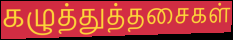
கழுத்துத்தசைகள்